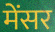
मेंसर